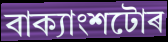
বাক্যাংশটোৰ